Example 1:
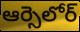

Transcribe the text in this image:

ఆర్సెలోర్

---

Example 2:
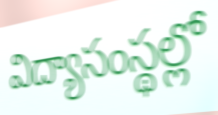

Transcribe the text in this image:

విద్యాసంస్థల్లో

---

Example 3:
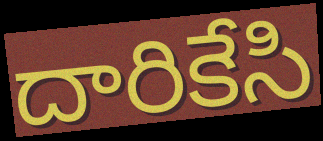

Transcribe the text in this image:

దారికేసి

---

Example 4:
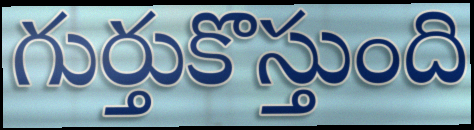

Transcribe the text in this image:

గుర్తుకొస్తుంది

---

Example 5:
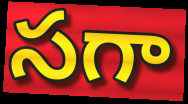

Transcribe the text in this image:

సగా